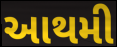
આથમી